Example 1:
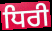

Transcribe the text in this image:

ਧਿਰੀ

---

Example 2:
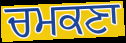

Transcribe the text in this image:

ਚਮਕਣਾ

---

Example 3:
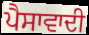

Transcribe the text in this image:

ਪੈਸਾਵਾਦੀ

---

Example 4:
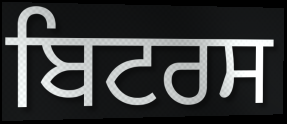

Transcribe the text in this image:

ਬਿਟਰਸ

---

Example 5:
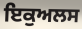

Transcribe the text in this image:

ਇਕੁਅਲਸ